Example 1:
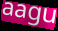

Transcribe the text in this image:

aagu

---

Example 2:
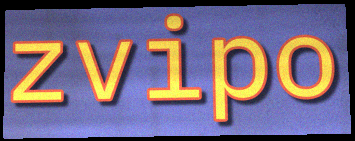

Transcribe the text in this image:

zvipo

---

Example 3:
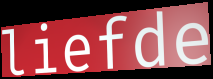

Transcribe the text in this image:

liefde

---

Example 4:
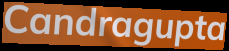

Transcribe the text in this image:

Candragupta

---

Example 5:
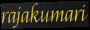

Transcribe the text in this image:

rajakumari